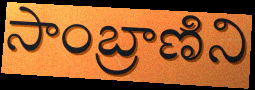
సాంబ్రాణిని